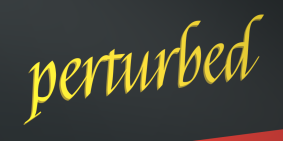
perturbed